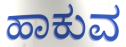
ಹಾಕುವ